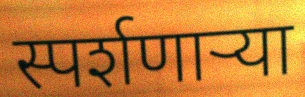
स्पर्शणाऱ्या